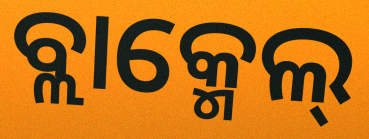
ବ୍ଲାକ୍ମେଲ୍